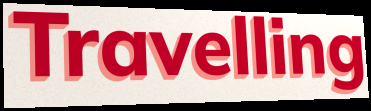
Travelling